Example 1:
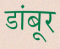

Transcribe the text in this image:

डांबूर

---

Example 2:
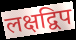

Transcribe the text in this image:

लक्षद्विप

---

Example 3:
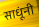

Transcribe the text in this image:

साधूंनी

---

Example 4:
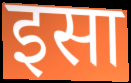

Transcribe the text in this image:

इसा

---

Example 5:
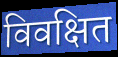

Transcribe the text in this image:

विवक्षित